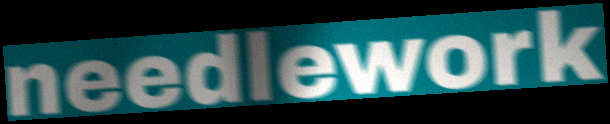
needlework